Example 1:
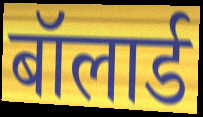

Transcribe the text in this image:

बॉलार्ड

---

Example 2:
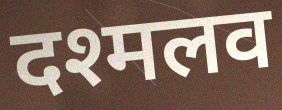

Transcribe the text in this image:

दश्मलव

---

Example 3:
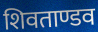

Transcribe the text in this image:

शिवताण्डव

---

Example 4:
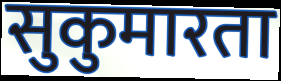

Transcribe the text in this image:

सुकुमारता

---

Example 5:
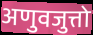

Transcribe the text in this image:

अणुवजुत्तो